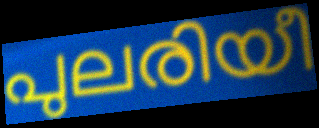
പുലരിയീ